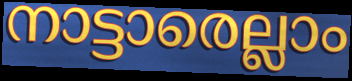
നാട്ടാരെല്ലാം